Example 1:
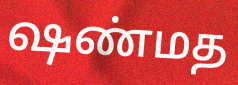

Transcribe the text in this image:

ஷண்மத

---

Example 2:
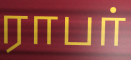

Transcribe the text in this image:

ராபர்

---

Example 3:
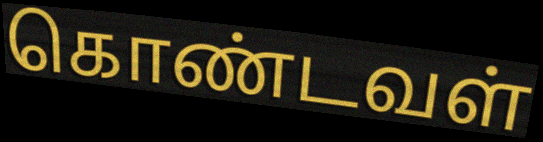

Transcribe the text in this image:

கொண்டவள்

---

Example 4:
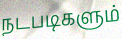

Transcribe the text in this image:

நடபடிகளும்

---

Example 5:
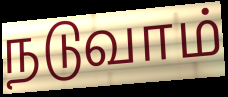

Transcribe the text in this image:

நடுவாம்